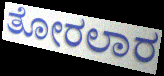
ತೋರಲಾರ